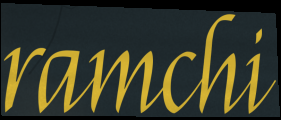
ramchi